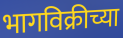
भागविक्रीच्या